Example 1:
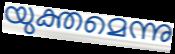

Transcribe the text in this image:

യുക്തമെന്നു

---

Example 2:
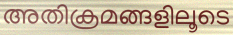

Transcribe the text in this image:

അതിക്രമങ്ങളിലൂടെ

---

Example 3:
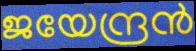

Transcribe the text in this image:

ജയേന്ദ്രൻ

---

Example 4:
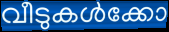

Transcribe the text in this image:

വീടുകൾക്കോ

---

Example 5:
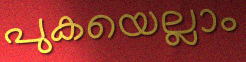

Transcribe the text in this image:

പുകയെല്ലാം